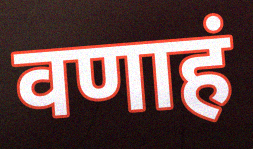
वणाहं